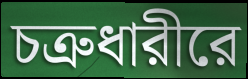
চত্রুধারীরে